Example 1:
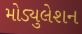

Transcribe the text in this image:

મોડ્યુલેશન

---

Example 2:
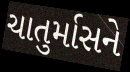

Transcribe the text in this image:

ચાતુર્માસને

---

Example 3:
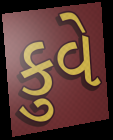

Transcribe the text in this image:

કુવે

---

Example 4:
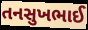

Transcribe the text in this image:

તનસુખભાઈ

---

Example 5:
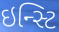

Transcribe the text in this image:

ઇન્સ્ટિ